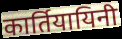
कार्तियायिनी